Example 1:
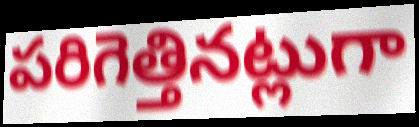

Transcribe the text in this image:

పరిగెత్తినట్లుగా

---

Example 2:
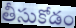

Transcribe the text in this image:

తీసుకోడం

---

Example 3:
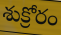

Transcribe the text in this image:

శుక్రోరం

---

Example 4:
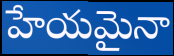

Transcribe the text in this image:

హేయమైనా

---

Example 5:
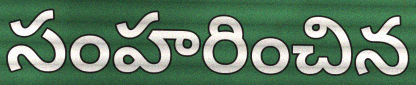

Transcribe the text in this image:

సంహరించిన